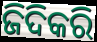
ଜିଦିକରି